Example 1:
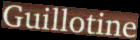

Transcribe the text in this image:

Guillotine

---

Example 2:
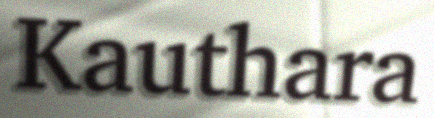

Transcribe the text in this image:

Kauthara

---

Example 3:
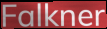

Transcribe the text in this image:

Falkner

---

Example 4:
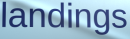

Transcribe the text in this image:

landings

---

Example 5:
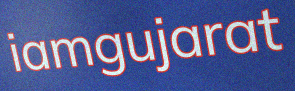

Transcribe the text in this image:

iamgujarat